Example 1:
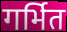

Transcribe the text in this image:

गर्भित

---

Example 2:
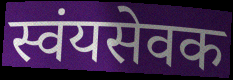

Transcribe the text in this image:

स्वंयसेवक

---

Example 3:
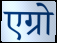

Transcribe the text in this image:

एग्रो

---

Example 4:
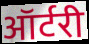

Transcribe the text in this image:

ऑर्टरी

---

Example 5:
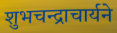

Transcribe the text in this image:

शुभचन्द्राचार्यने